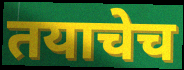
तयाचेच